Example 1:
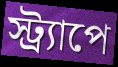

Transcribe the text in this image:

স্ট্র্যাপে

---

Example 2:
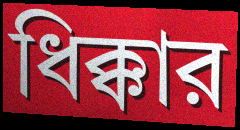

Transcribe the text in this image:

ধিক্কার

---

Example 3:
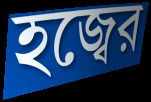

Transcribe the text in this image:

হজ্বের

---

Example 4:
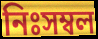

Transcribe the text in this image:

নিঃসম্বল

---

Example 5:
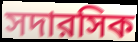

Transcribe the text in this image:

সদারসিক